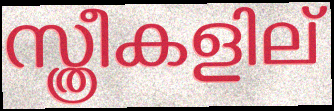
സ്ത്രീകളില്